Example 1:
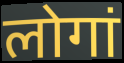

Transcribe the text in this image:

लोगां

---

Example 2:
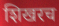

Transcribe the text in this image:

शिखरच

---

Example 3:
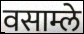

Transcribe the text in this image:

वसाम्ले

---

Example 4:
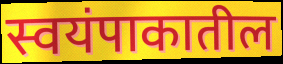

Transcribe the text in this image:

स्वयंपाकातील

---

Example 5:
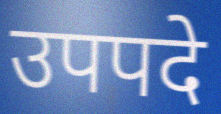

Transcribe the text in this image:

उपपदे